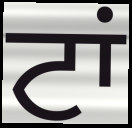
ਟਾਂ